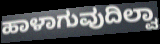
ಹಾಳಾಗುವುದಿಲ್ವಾ